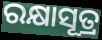
ରକ୍ଷାସୂତ୍ର